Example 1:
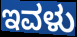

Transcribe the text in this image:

ಇವಳು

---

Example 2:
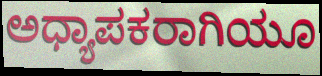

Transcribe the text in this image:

ಅಧ್ಯಾಪಕರಾಗಿಯೂ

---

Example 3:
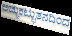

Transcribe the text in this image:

ಅಚ್ಚುಕಟ್ಟುತನದಿಂದ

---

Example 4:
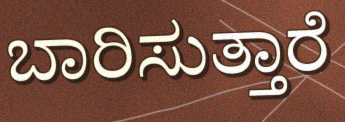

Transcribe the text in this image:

ಬಾರಿಸುತ್ತಾರೆ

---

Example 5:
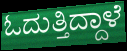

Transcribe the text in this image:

ಓದುತ್ತಿದ್ದಾಳೆ